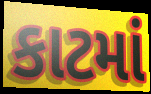
કાટમાં